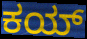
ಕಯ್